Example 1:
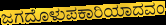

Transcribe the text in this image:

ಜಗದೊಳುಪಕಾರಿಯಾದವಂ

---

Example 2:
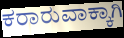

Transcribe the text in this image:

ಕರಾರುವಾಕ್ಕಾಗಿ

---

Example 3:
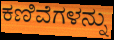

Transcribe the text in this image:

ಕಣಿವೆಗಳನ್ನು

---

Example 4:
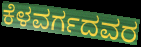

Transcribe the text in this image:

ಕೆಳವರ್ಗದವರ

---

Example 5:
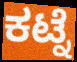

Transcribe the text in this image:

ಕಟ್ನೆ